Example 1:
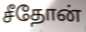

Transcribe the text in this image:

சீதோன்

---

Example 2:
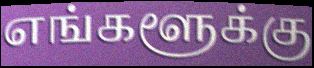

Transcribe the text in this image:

எங்களூக்கு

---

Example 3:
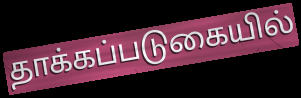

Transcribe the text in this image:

தாக்கப்படுகையில்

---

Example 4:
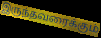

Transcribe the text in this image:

இருந்தவரைக்கும்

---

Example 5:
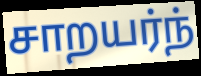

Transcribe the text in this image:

சாறயர்ந்